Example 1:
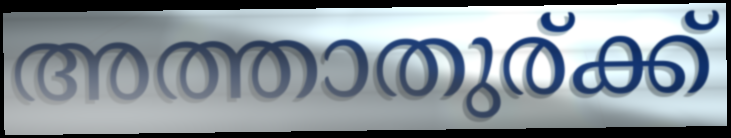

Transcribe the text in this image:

അത്താതുര്ക്ക്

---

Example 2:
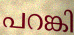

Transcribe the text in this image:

പറങ്കി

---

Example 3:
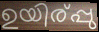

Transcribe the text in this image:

ഉയിര്പ്പു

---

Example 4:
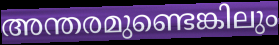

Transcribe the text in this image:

അന്തരമുണ്ടെങ്കിലും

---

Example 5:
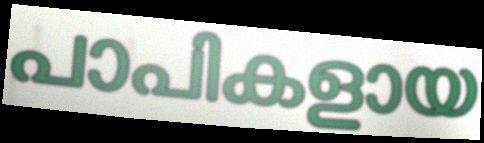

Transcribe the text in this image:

പാപികളായ